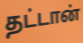
தட்டான்